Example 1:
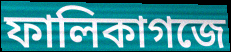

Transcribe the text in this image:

ফালিকাগজে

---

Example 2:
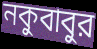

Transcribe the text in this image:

নকুবাবুর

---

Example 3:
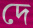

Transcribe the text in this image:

দে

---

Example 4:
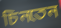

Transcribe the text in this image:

চিনতেন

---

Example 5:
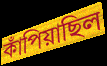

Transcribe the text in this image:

কাঁপিয়াছিল